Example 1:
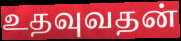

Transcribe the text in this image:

உதவுவதன்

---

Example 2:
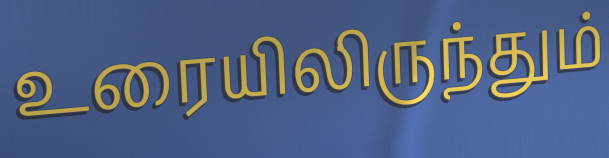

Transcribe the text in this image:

உரையிலிருந்தும்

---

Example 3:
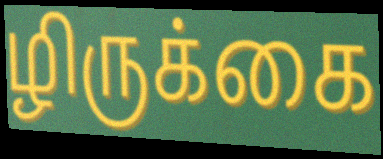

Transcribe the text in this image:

ழிருக்கை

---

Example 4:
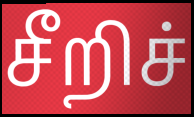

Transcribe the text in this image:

சீறிச்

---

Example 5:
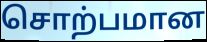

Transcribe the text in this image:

சொற்பமான